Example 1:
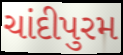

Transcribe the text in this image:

ચાંદીપુરમ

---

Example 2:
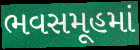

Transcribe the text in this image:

ભવસમૂહમાં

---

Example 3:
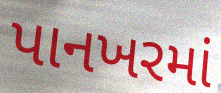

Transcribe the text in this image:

પાનખરમાં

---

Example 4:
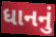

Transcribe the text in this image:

ધાનનું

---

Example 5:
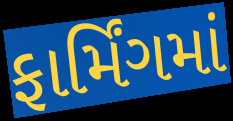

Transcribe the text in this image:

ફાર્મિંગમાં